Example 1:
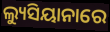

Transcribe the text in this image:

ଲ୍ୟୁସିୟାନାରେ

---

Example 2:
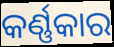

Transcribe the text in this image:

କର୍ଣ୍ଣକାର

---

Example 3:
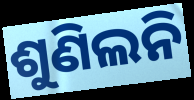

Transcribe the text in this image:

ଶୁଣିଲନି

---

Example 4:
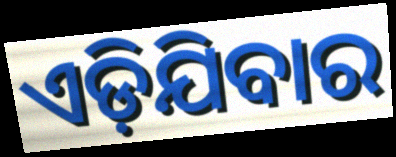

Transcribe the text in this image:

ଏଡ଼ିଯିବାର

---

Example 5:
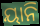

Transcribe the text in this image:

ୟାନି